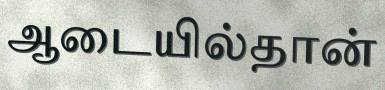
ஆடையில்தான்